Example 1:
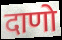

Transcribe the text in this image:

दाणो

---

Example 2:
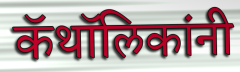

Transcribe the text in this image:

कॅथॉलिकांनी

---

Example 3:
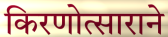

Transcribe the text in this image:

किरणोत्साराने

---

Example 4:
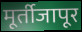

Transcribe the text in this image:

मूर्तीजापूर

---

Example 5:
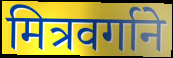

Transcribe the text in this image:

मित्रवर्गाने